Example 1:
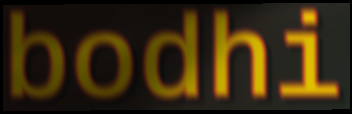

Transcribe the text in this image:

bodhi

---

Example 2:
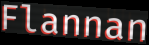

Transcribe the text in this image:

Flannan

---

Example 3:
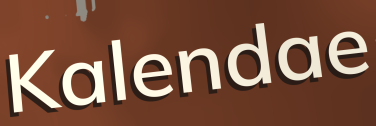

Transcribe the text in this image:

Kalendae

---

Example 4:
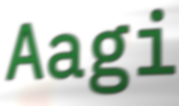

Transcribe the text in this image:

Aagi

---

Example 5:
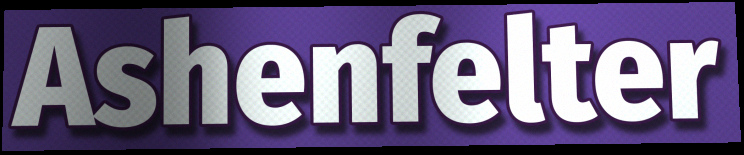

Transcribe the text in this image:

Ashenfelter